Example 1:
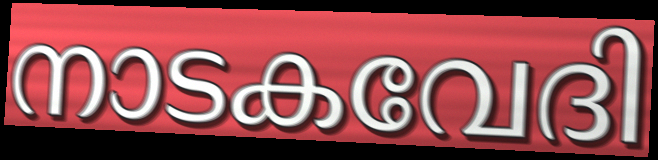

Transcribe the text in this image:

നാടകവേദി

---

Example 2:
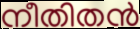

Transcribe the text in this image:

നീതിതൻ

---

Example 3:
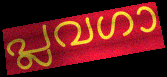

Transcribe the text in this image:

പ്ലവഗാ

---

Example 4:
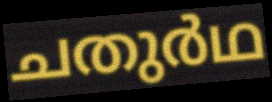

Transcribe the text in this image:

ചതുർഥ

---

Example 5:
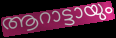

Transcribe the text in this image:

ആറാട്ടായും